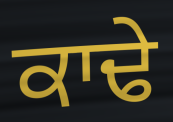
ਕਾਢੇ